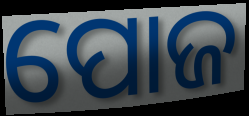
ପୋଜ